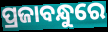
ପ୍ରଜାବନ୍ଧୁରେ